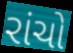
રાંચો